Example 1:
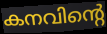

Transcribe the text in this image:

കനവിന്റെ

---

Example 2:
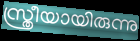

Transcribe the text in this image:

സ്ത്രീയായിരുന്നു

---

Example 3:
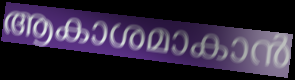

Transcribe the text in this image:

ആകാശമാകാൻ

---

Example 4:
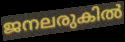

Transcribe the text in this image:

ജനലരുകിൽ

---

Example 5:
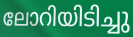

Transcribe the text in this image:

ലോറിയിടിച്ചു